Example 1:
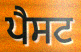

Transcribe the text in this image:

ਪੈਸਟ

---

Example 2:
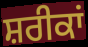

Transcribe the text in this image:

ਸ਼ਰੀਕਾਂ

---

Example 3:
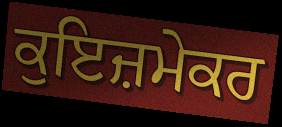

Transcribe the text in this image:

ਕੁਇਜ਼ਮੇਕਰ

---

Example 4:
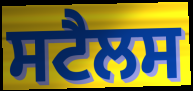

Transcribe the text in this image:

ਸਟੈਲਸ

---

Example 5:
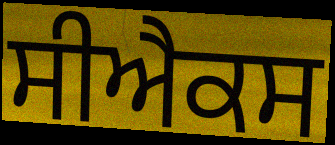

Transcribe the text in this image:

ਸੀਐਕਸ